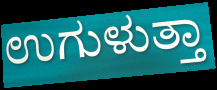
ಉಗುಳುತ್ತಾ